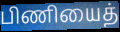
பிணியைத்